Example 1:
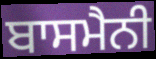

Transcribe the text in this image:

ਬਾਸਮੈਨੀ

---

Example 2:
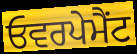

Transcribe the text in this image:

ਓਵਰਪੇਮੈਂਟ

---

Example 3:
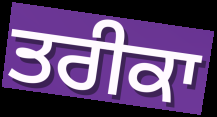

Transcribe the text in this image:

ਤਰੀਕਾ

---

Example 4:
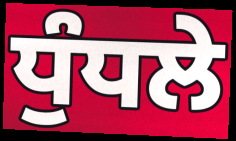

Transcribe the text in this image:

ਧੁੰਧਲੇ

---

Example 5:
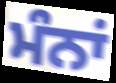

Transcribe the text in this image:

ਮੰਨਾਂ